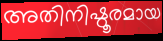
അതിനിഷ്ഠൂരമായ